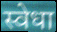
स्वेधा